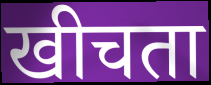
खीचता